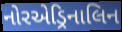
નોરએડ્રિનાલિન